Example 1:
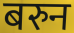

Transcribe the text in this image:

बरुन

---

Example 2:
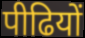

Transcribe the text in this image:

पीढियों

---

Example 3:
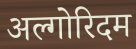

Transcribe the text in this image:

अल्गोरिदम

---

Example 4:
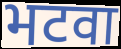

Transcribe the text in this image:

भटवा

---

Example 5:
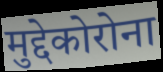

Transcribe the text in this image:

मुद्देकोरोना